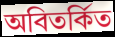
অবিতর্কিত